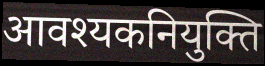
आवश्यकनियुक्ति